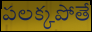
పలక్కపోతే